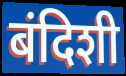
बंदिशी